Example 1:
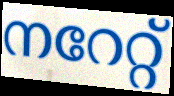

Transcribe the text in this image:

നറേറ്റ്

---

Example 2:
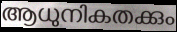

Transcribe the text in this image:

ആധുനികതക്കും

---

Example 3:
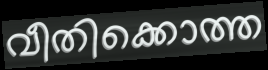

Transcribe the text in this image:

വീതിക്കൊത്ത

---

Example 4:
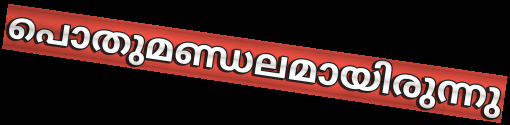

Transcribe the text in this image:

പൊതുമണ്ഡലമായിരുന്നു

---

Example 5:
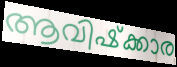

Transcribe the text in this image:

ആവിഷ്‌ക്കാര